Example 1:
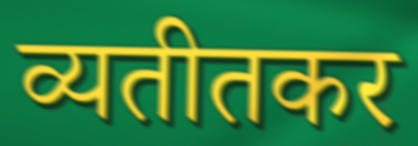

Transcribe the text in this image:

व्यतीतकर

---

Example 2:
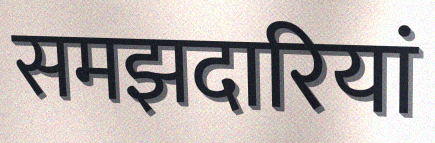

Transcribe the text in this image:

समझदारियां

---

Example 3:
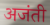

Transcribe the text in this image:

अजंती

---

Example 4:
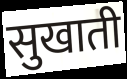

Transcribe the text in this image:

सुखाती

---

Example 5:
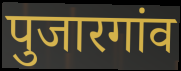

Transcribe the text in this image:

पुजारगांव